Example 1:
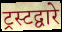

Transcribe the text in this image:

ट्रस्टद्वारे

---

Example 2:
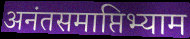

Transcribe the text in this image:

अनंतसमाप्तिभ्याम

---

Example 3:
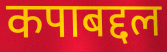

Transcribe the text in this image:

कपाबद्दल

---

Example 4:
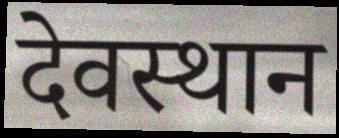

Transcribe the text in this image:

देवस्थान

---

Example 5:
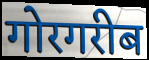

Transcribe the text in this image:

गोरगरीब